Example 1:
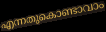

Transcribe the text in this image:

എന്നതുകൊണ്ടാവാം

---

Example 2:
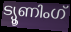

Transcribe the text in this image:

ട്യൂണിംഗ്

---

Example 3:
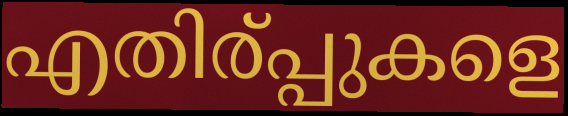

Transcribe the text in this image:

എതിര്പ്പുകളെ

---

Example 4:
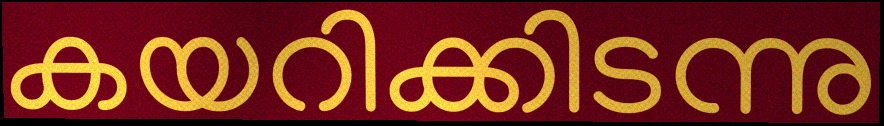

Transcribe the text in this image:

കയറിക്കിടന്നു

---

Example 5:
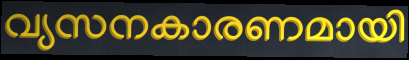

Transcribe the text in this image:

വ്യസനകാരണമായി